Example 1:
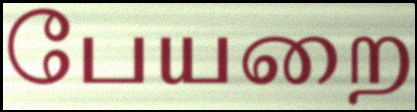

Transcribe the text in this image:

பேயறை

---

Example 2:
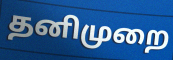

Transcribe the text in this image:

தனிமுறை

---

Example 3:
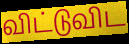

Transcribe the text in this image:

விட்டுவிட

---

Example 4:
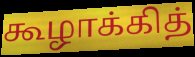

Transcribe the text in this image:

கூழாக்கித்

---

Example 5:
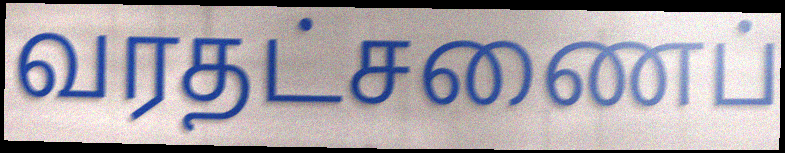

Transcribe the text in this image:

வரதட்சணைப்